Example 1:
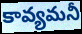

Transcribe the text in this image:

కావ్యమనీ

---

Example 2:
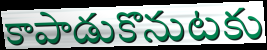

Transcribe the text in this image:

కాపాడుకొనుటకు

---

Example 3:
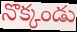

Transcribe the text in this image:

నొక్కండు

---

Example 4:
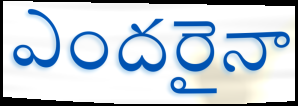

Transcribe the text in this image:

ఎందరైనా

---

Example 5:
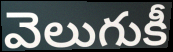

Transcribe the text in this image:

వెలుగుకీ